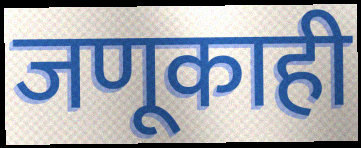
जणूकाही